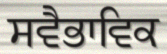
ਸਵੈਭਾਵਿਕ